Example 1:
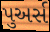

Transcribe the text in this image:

પુઅર્સ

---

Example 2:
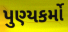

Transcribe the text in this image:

પુણ્યકર્મો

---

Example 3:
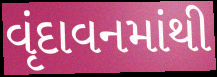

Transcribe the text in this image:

વૃંદાવનમાંથી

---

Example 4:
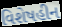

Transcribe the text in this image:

વિશેષહીન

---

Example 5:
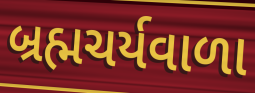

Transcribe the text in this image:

બ્રહ્મચર્યવાળા